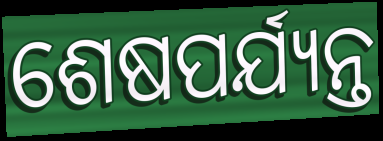
ଶେଷପର୍ଯ୍ୟନ୍ତ